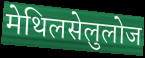
मेथिलसेलुलोज